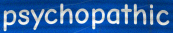
psychopathic